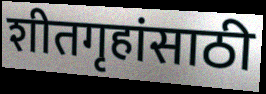
शीतगृहांसाठी